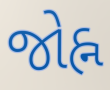
જોહ્ન